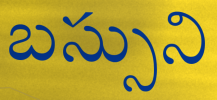
బస్సుని